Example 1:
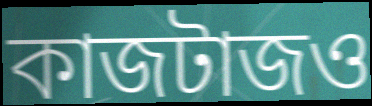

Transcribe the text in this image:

কাজটাজও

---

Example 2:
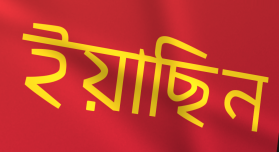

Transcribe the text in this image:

ইয়াছিন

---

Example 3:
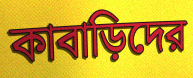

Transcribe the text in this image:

কাবাড়িদের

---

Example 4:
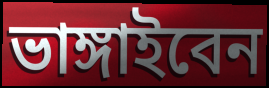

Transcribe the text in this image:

ভাঙ্গাইবেন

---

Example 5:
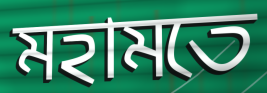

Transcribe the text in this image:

মহামতে